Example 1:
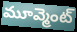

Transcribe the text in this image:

మూవ్మెంట్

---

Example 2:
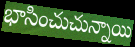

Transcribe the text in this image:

భాసించుచున్నాయి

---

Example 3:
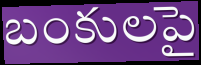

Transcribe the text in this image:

బంకులపై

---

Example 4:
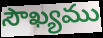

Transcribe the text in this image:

సౌఖ్యము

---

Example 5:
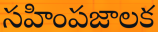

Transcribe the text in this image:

సహింపజాలక